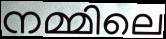
നമ്മിലെ